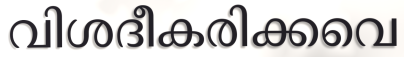
വിശദീകരിക്കവെ